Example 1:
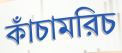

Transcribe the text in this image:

কাঁচামরিচ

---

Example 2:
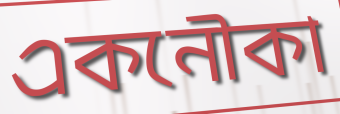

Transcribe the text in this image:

একনৌকা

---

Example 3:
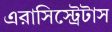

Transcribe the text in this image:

এরাসিস্ট্রেটাস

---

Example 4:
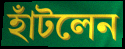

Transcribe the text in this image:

হাঁটলেন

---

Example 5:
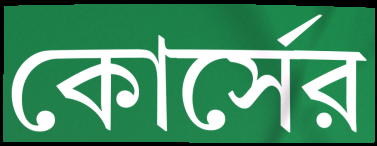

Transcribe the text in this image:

কোর্সের